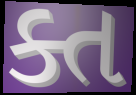
ક્ત